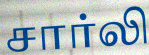
சார்லி